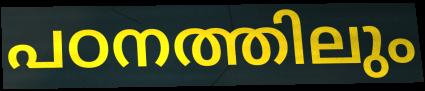
പഠനത്തിലും